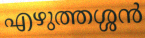
എഴുത്തശ്ശൻ